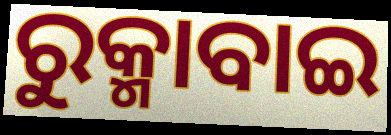
ରୁକ୍ମାବାଇ